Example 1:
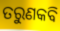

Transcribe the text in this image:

ତରୁଣକବି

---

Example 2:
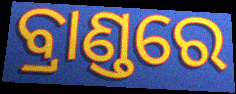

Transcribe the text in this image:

ବ୍ରାଣ୍ଡରେ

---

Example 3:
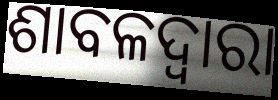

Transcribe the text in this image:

ଶାବଳଦ୍ୱାରା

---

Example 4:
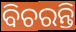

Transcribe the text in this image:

ବିଚରନ୍ତି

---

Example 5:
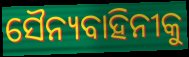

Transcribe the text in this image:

ସୈନ୍ୟବାହିନୀକୁ